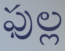
ఫుల్ల